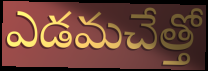
ఎడమచేత్తో